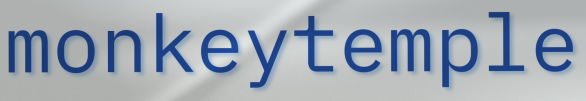
monkeytemple